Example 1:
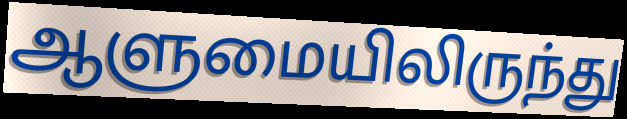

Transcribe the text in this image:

ஆளுமையிலிருந்து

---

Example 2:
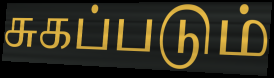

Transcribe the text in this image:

சுகப்படும்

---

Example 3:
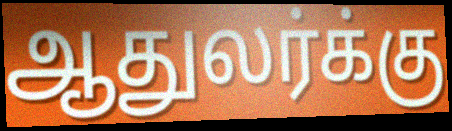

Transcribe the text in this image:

ஆதுலர்க்கு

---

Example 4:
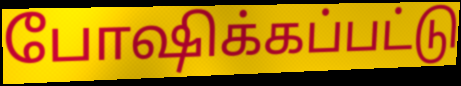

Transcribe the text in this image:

போஷிக்கப்பட்டு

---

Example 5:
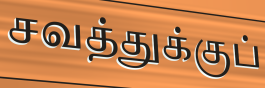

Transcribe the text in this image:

சவத்துக்குப்